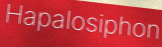
Hapalosiphon